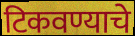
टिकवण्याचे